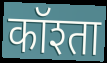
कॉश्ता